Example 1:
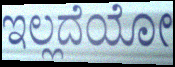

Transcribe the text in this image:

ಇಲ್ಲದೆಯೋ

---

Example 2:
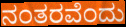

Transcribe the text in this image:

ನಂತರವೆಂದು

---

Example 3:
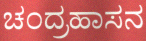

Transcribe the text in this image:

ಚಂದ್ರಹಾಸನ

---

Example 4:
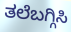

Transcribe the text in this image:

ತಲೆಬಗ್ಗಿಸಿ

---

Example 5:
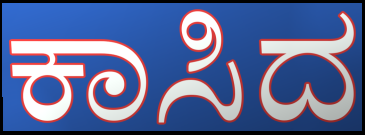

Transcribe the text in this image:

ಕಾಸಿದ